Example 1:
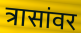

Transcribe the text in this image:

त्रासांवर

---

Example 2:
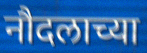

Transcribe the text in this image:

नौदलाच्या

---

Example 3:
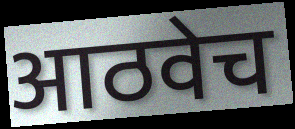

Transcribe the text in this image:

आठवेच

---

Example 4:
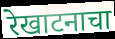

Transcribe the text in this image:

रेखाटनाचा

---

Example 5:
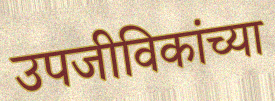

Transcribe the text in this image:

उपजीविकांच्या